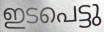
ഇടപെട്ടു